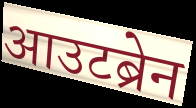
आउटब्रेन